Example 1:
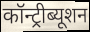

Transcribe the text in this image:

कॉन्ट्रीब्यूशन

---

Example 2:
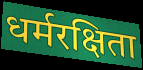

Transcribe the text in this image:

धर्मरक्षिता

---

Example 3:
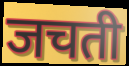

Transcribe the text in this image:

जचती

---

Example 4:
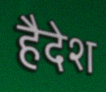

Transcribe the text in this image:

हैदेश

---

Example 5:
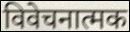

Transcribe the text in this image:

विवेचनात्मक